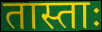
तास्ताः